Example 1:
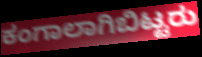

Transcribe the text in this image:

ಕಂಗಾಲಾಗಿಬಿಟ್ಟರು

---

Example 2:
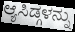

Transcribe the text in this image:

ಆ್ಯಸಿಡ್ಗಳನ್ನು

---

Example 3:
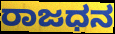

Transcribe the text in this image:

ರಾಜಧನ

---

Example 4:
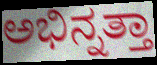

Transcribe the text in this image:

ಅಭಿನ್ನತ್ತಾ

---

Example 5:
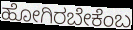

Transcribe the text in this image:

ಹೋಗಿರಬೇಕೆಂಬ